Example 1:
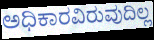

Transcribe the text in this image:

ಅಧಿಕಾರವಿರುವುದಿಲ್ಲ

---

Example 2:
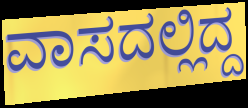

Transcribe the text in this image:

ವಾಸದಲ್ಲಿದ್ದ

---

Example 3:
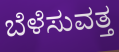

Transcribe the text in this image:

ಬೆಳೆಸುವತ್ತ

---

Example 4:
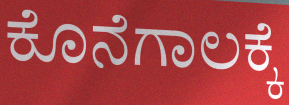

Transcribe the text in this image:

ಕೊನೆಗಾಲಕ್ಕೆ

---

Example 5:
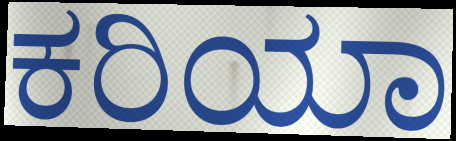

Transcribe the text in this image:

ಕರಿಯಾ